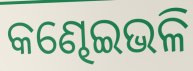
କଣ୍ଢେଇଭଳି